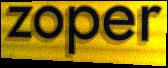
zoper